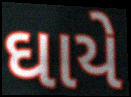
ઘાયે